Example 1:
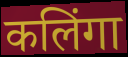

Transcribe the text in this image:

कलिंगा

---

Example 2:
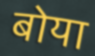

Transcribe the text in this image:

बोया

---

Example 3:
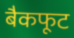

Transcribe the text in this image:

बैकफूट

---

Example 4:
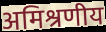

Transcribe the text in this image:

अमिश्रणीय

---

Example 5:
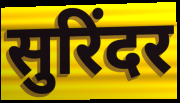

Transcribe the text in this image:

सुरिंदर